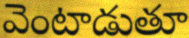
వెంటాడుతూ